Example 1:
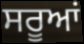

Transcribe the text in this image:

ਸਰੂਆਂ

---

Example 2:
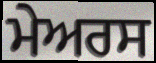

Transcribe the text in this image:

ਮੇਅਰਸ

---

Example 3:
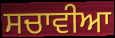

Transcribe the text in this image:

ਸਚਾਵੀਆ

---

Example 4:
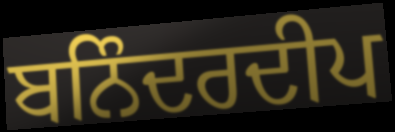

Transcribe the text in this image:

ਬਨਿੰਦਰਦੀਪ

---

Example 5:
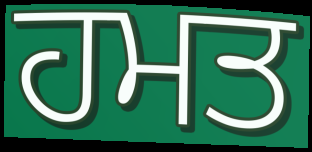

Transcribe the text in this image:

ਹਮਤ